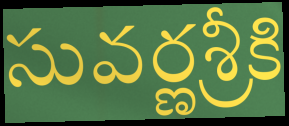
సువర్ణశ్రీకి